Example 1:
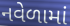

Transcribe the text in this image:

નવેળામાં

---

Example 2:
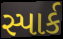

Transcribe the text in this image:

સ્પાર્ક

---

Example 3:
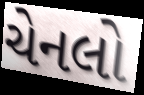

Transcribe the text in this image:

ચેનલો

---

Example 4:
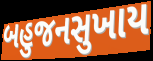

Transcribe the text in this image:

બહુજનસુખાય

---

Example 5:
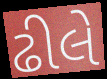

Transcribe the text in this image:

ઢીલે